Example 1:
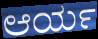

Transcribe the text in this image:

ಆರ್ಯ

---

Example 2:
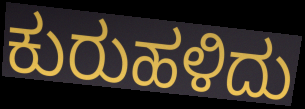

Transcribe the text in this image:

ಕುರುಹಳಿದು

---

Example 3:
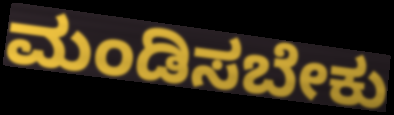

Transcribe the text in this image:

ಮಂಡಿಸಬೇಕು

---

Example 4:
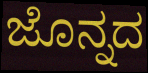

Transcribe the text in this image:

ಜೊನ್ನದ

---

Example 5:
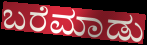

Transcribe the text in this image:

ಬರೆಮಾಡು